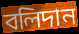
বলিদান